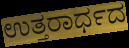
ಉತ್ತರಾರ್ಧದ